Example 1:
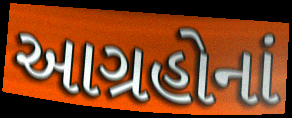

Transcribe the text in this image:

આગ્રહોનાં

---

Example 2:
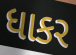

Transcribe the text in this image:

ધાકર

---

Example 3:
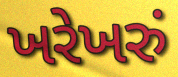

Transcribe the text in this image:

ખરેખરું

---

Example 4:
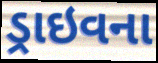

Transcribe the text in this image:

ડ્રાઇવના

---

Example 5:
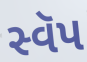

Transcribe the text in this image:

સ્વૅપ